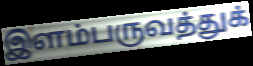
இளம்பருவத்துக்